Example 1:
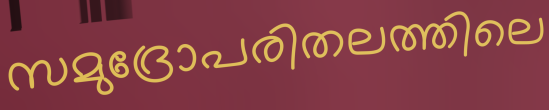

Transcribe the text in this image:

സമുദ്രോപരിതലത്തിലെ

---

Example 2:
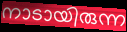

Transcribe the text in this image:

നാടായിരുന്ന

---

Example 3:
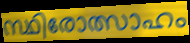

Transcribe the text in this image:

സ്ഥിരോത്സാഹം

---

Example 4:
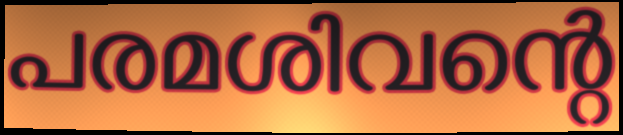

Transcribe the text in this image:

പരമശിവന്റെ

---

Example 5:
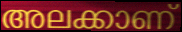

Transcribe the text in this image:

അലക്കാണ്